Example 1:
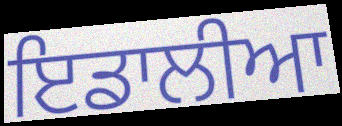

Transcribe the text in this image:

ਇਡਾਲੀਆ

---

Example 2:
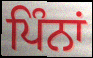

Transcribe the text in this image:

ਪਿੰਨਾਂ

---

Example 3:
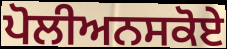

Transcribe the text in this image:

ਪੋਲੀਅਨਸਕੋਏ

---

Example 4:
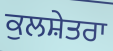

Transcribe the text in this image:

ਕੁਲਸ਼ੇਤਰਾ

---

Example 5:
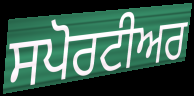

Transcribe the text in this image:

ਸਪੋਰਟੀਅਰ